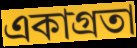
একাগ্রতা